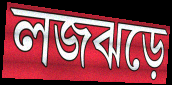
লজঝড়ে